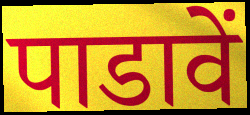
पाडावें